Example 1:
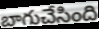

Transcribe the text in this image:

బాగుచేసింది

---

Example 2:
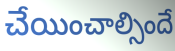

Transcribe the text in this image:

చేయించాల్సిందే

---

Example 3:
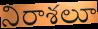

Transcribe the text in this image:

నిరాశలూ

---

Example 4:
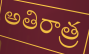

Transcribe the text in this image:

అతిరాత్ర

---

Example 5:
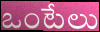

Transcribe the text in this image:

ఒంటేలు